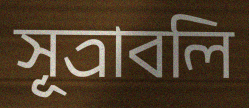
সূত্রাবলি